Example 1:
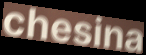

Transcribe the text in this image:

chesina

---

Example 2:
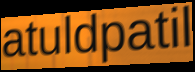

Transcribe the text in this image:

atuldpatil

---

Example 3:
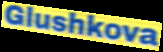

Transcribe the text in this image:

Glushkova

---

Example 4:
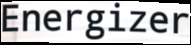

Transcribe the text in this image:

Energizer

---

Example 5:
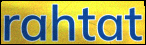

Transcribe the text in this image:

rahtat